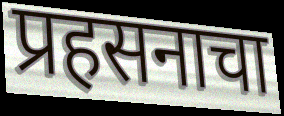
प्रहसनाचा